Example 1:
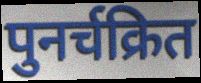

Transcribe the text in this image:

पुनर्चक्रित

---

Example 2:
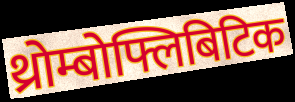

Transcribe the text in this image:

थ्रोम्बोफ्लिबिटिक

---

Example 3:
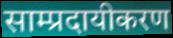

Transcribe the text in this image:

साम्प्रदायीकरण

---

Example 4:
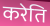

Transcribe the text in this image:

करेति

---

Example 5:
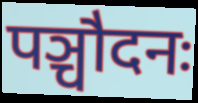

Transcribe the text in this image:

पञ्चौदनः